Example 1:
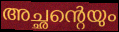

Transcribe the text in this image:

അച്ഛന്റെയും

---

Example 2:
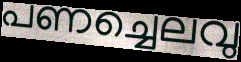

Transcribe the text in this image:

പണച്ചെലവു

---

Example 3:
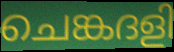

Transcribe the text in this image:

ചെങ്കദളി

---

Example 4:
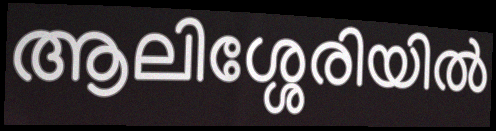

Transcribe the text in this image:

ആലിശ്ശേരിയിൽ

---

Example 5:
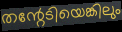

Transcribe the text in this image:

തന്റേടിയെങ്കിലും